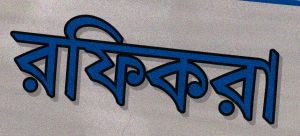
রফিকরা